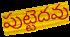
పుట్టెదవు